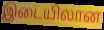
இடையிலான